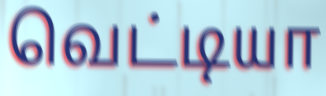
வெட்டியா